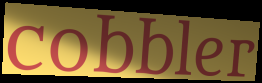
cobbler